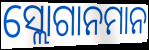
ସ୍ଲୋଗାନମାନ